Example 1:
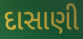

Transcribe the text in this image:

દાસાણી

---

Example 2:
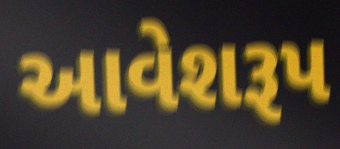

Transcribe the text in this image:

આવેશરૂપ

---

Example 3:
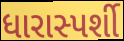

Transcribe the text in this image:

ધારાસ્પર્શી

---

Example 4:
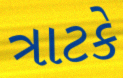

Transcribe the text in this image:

ત્રાટકે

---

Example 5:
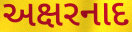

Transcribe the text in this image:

અક્ષરનાદ